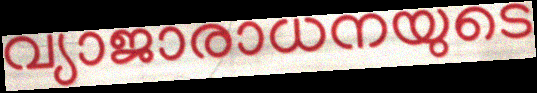
വ്യാജാരാധനയുടെ